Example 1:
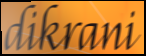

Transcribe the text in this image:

dikrani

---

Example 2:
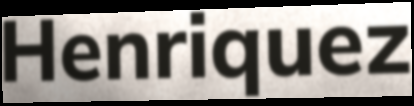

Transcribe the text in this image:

Henriquez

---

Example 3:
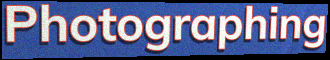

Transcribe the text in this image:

Photographing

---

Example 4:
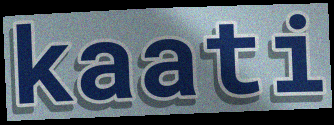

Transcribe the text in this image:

kaati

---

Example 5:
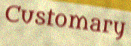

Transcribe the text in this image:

Customary